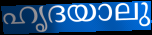
ഹൃദയാലു